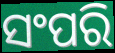
ସଂପରି